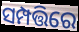
ସମ୍ପତ୍ତିରେ